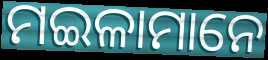
ମଇଳାମାନେ